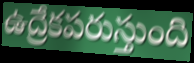
ఉద్రేకపరుస్తుంది